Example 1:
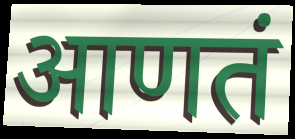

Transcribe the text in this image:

आणतं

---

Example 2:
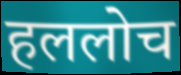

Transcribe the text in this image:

हललोच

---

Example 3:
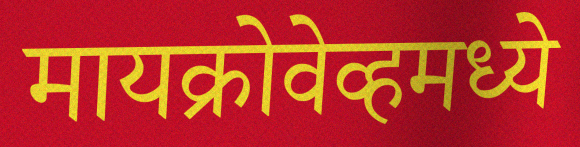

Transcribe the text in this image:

मायक्रोवेव्हमध्ये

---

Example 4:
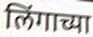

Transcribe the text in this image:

लिंगाच्या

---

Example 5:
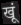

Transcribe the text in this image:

खूं